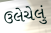
ઉલેચેલું